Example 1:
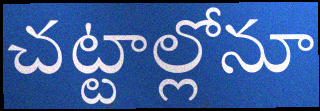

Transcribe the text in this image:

చట్టాల్లోనూ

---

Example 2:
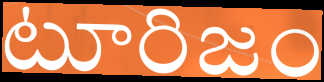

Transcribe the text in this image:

టూరిజం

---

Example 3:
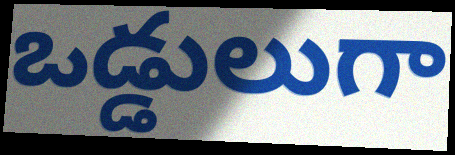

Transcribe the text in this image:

ఒడ్డులుగా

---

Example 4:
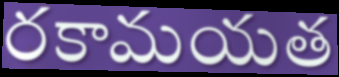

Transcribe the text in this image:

రకామయత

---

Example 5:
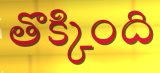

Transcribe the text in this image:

తొక్కింది